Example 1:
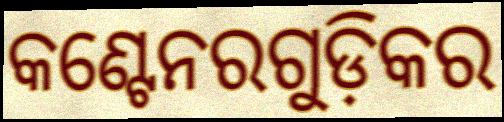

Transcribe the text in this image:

କଣ୍ଟେନରଗୁଡ଼ିକର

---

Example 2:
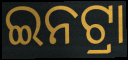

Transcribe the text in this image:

ଇନଟ୍ରା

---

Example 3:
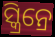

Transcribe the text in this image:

ସ୍କ୍ରିନ୍ରେ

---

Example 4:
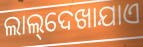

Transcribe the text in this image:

ଲାଲ୍‌ଦେଖାଯାଏ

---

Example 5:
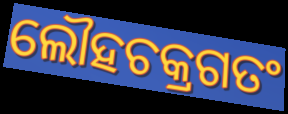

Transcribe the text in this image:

ଲୌହଚକ୍ରଗତଂ